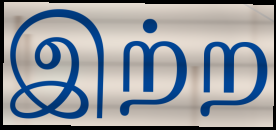
இற்ற